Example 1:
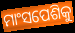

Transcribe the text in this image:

ମାଂସପେଶିକୁ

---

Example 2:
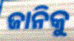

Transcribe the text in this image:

ଜାନିକୁ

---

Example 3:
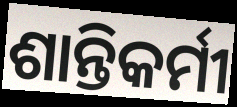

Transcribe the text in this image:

ଶାନ୍ତିକର୍ମୀ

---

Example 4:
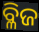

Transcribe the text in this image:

ବ୍ଳିଜ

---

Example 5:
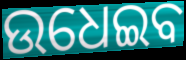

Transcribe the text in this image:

ଉଧେଇବ